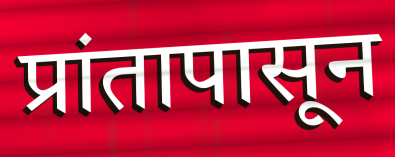
प्रांतापासून